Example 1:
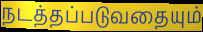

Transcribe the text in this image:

நடத்தப்படுவதையும்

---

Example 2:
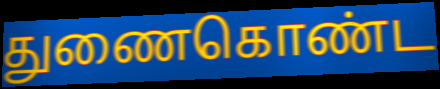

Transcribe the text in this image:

துணைகொண்ட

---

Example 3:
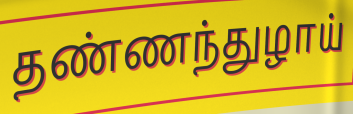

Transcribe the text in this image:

தண்ணந்துழாய்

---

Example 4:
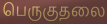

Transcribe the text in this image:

பெருகுதலை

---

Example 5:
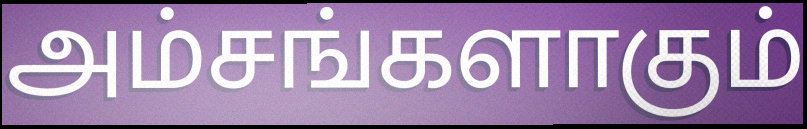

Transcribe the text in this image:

அம்சங்களாகும்